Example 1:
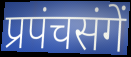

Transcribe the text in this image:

प्रपंचसंगें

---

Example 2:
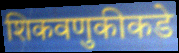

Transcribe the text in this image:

शिकवणुकीकडे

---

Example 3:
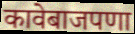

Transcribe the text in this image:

कावेबाजपणा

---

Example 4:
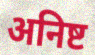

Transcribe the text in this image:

अनिष्ट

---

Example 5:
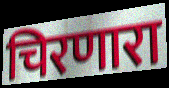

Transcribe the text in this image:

चिरणारा